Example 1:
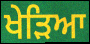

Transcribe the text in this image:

ਖੇੜਿਆ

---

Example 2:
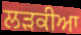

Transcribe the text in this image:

ਲੜਕੀਆ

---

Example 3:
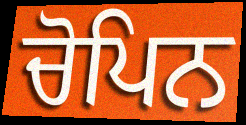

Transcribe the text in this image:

ਚੋਪਿਨ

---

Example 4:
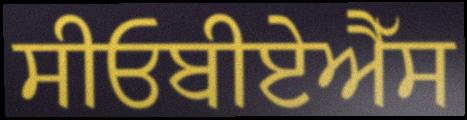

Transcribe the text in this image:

ਸੀਓਬੀਏਐੱਸ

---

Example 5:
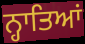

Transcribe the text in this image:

ਨ੍ਹਾਤਿਆਂ